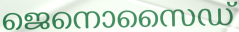
ജെനൊസൈഡ്